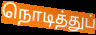
நொடித்துப்